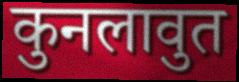
कुनलावुत